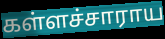
கள்ளச்சாராய